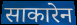
साकारेन